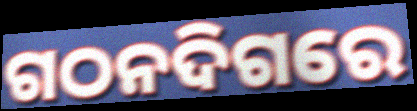
ଗଠନଦିଗରେ